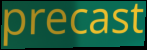
precast